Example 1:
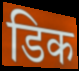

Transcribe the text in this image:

डिक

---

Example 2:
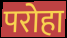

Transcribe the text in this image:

परोहा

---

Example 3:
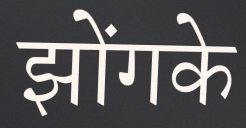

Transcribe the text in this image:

झोंगके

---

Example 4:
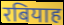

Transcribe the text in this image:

रबियाह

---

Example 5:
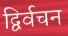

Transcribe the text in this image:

द्विर्वचन